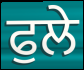
ਫੁਲੇ